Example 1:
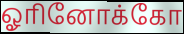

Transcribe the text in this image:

ஓரினோக்கோ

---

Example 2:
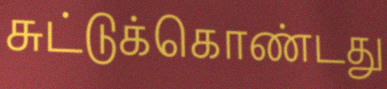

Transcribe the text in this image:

சுட்டுக்கொண்டது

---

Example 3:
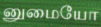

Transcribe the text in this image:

னுமையோ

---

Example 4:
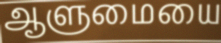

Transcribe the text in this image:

ஆளுமையை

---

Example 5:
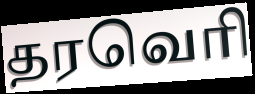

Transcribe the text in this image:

தரவெரி